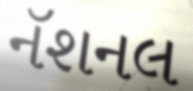
નૅશનલ